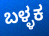
ಬಳ್ಳಕ